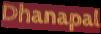
Dhanapal